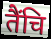
तैंचि